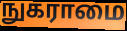
நுகராமை